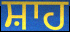
ਸ਼ਾਹ